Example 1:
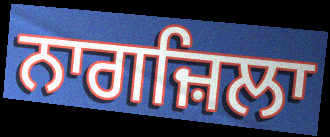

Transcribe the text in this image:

ਨਾਗਜ਼ਿਲਾ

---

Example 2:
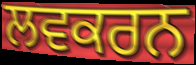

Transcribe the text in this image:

ਲਵਕਰਨ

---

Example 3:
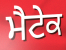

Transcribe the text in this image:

ਮੈਟੇਕ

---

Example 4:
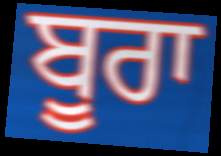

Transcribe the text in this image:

ਬੂਰਾ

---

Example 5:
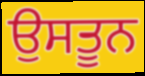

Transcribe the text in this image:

ਉਸਤੂਨ